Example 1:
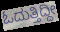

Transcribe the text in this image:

ಓದುತ್ತಿದ್ದೀ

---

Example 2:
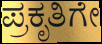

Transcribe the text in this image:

ಪ್ರಕೃತಿಗೇ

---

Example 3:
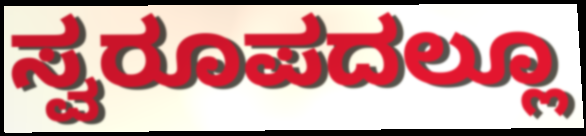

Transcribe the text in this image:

ಸ್ವರೂಪದಲ್ಲೂ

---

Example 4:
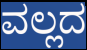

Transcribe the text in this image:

ವಲ್ಲದ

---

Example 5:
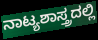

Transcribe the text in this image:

ನಾಟ್ಯಶಾಸ್ತ್ರದಲ್ಲಿ